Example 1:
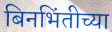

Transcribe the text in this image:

बिनभिंतीच्या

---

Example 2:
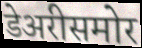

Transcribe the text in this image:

डेअरीसमोर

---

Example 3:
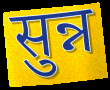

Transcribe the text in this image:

सुन्न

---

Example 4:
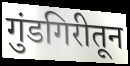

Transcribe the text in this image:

गुंडगिरीतून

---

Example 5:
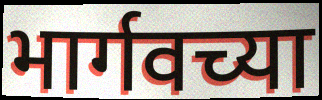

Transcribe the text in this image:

भार्गवच्या